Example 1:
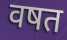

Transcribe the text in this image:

वषत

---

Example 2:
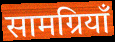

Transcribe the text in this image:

सामग्रियाँ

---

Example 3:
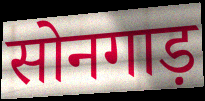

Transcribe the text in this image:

सोनगाड़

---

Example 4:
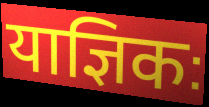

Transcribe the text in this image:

याज्ञिकः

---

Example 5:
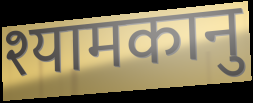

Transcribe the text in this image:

श्यामकानु